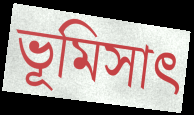
ভূমিসাৎ